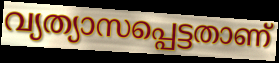
വ്യത്യാസപ്പെട്ടതാണ്